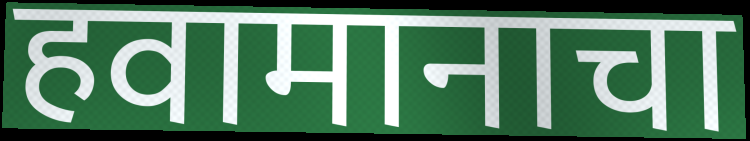
हवामानाचा